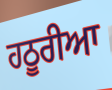
ਹਠੂਰੀਆ